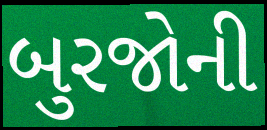
બુરજોની